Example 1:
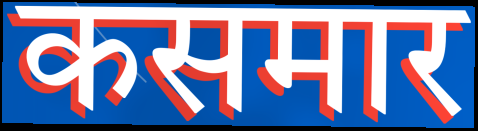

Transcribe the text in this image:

कसमार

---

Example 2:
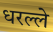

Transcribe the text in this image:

धरल्ले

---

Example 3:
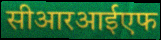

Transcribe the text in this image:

सीआरआईएफ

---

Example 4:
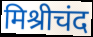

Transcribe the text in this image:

मिश्रीचंद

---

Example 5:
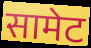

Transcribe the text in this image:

सामेट